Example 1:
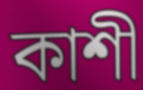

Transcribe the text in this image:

কাশী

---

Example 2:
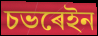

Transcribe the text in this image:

চভৰেইন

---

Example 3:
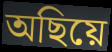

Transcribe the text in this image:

অছিয়ে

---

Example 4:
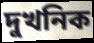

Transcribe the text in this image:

দুখনিক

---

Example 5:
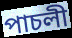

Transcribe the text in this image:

পাচলী